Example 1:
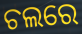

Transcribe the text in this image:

ଚଲରେ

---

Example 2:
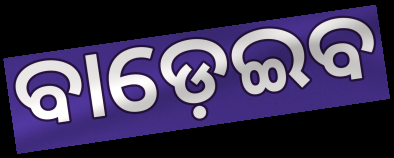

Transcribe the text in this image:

ବାଡ଼େଇବ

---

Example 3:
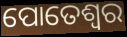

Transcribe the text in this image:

ପୋତେଶ୍ବର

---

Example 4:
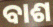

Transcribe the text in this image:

ବାଶ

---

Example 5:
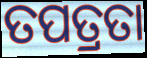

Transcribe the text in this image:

ତପତ୍ରତା